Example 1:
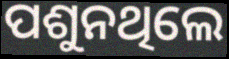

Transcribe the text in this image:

ପଶୁନଥିଲେ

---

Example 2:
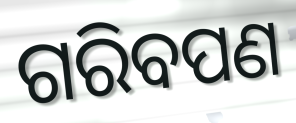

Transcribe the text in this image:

ଗରିବପଣ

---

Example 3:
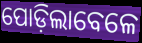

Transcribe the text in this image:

ପୋଡ଼ିଲାବେଳେ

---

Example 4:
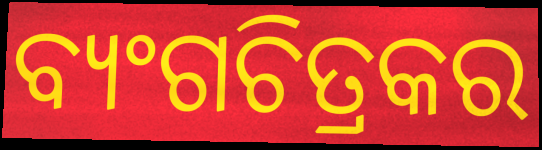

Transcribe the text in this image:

ବ୍ୟଂଗଚିତ୍ରକର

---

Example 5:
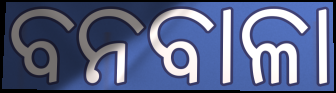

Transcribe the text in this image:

ବନବାଳା